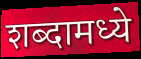
शब्दामध्ये